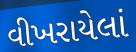
વીખરાયેલાં